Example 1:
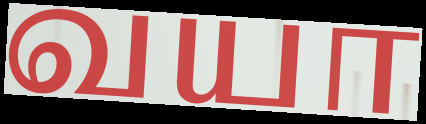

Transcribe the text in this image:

வயா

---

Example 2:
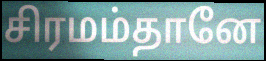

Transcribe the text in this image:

சிரமம்தானே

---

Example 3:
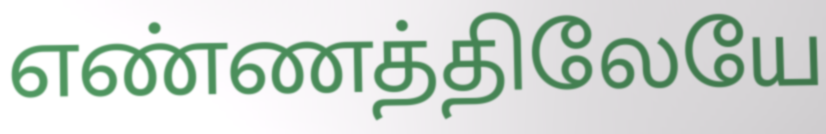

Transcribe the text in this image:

எண்ணத்திலேயே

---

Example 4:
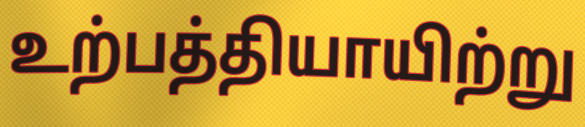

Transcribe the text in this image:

உற்பத்தியாயிற்று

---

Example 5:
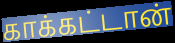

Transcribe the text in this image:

காக்கட்டான்